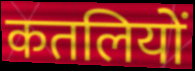
कतलियों